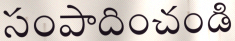
సంపాదించండి